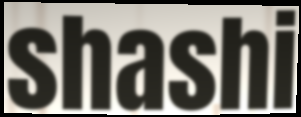
shashi